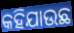
କହିଯାଉଛ